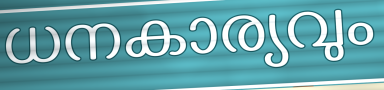
ധനകാര്യവും